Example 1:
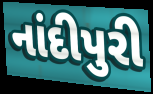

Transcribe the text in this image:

નાંદીપુરી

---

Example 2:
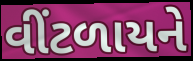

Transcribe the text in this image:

વીંટળાયને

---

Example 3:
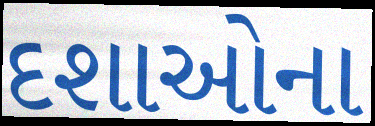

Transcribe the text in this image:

દશાઓના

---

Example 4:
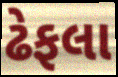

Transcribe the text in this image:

ઢેફલા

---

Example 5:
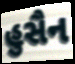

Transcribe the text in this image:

હુસૈન